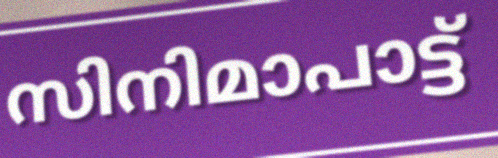
സിനിമാപാട്ട്